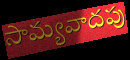
సామ్యవాదపు